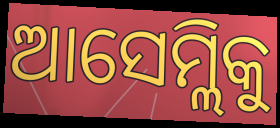
ଆସେମ୍ଲିକୁ